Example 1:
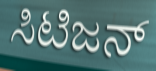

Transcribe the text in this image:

ಸಿಟಿಜನ್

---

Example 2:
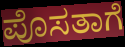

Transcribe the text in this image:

ಪೊಸತಾಗೆ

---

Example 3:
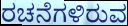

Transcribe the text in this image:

ರಚನೆಗಳಿರುವ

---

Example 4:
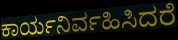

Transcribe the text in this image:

ಕಾರ್ಯನಿರ್ವಹಿಸಿದರೆ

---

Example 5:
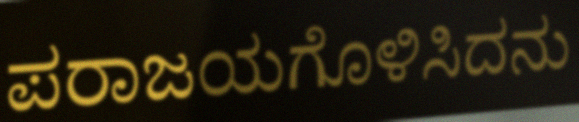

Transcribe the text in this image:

ಪರಾಜಯಗೊಳಿಸಿದನು